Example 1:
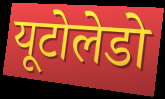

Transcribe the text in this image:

यूटोलेडो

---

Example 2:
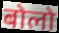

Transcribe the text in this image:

बोलो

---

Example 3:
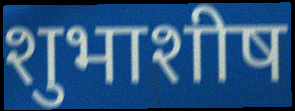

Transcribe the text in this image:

शुभाशीष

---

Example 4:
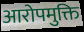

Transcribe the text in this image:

आरोपमुक्ति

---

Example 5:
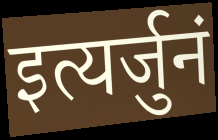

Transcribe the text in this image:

इत्यर्जुनं